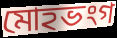
মোহভংগ